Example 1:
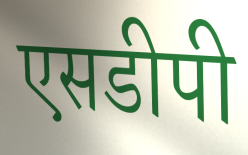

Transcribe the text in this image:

एसडीपी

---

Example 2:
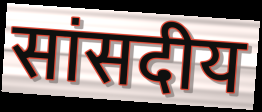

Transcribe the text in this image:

सांसदीय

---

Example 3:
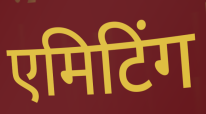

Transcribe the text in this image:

एमिटिंग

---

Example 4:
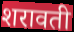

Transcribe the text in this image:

शरावती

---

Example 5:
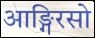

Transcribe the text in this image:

आङ्गिरसो